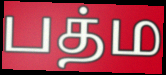
பத்ம